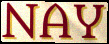
NAY